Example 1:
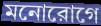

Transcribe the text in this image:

মনোরোগে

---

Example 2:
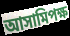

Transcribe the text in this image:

আসামিপক্ষ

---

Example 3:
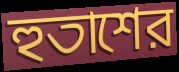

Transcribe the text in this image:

হুতাশের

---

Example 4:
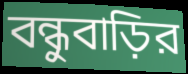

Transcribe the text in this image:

বন্ধুবাড়ির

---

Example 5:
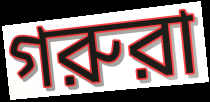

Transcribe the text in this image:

গরুরা